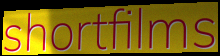
shortfilms